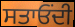
ਸਤਾਓਂਦੀ